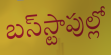
బస్‌స్టాపుల్లో